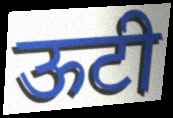
ऊटी